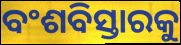
ବଂଶବିସ୍ତାରକୁ